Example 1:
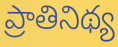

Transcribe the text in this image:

ప్రాతినిథ్య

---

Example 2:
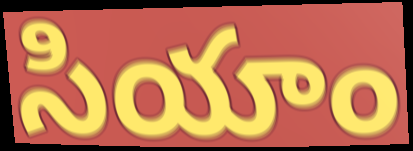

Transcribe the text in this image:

సియాం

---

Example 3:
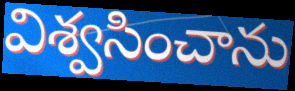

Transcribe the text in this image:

విశ్వసించాను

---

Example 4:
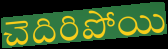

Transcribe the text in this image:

చెదిరిపోయి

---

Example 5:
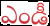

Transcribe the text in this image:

ఎండీ